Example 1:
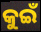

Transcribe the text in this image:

କୁଇଁ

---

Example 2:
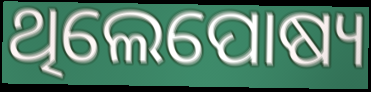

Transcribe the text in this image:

ଥିଲେପୋଷ୍ୟ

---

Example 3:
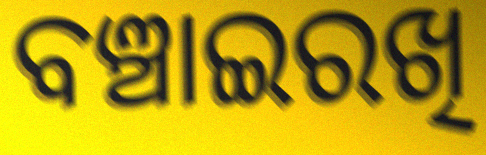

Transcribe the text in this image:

ବଞ୍ଚାଇରଖି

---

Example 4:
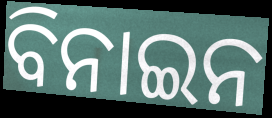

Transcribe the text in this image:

ବିନାଇନ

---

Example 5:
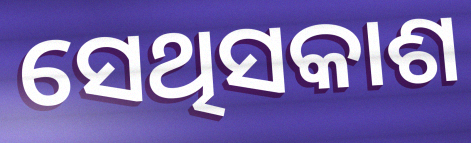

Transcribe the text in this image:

ସେଥିସକାଶ